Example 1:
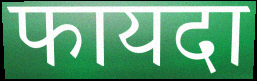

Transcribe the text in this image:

फायदा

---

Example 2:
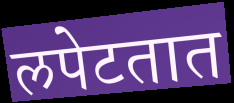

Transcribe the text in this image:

लपेटतात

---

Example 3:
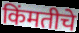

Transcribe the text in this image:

किंमतीचे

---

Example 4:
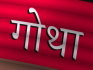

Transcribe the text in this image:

गोथा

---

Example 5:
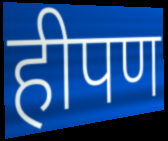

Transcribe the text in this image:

हीपण